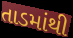
તાડમાંથી